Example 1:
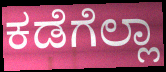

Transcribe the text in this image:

ಕಡೆಗೆಲ್ಲಾ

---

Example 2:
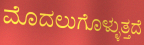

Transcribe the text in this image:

ಮೊದಲುಗೊಳ್ಳುತ್ತದೆ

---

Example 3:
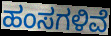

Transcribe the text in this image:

ಹಂಸಗಳಿವೆ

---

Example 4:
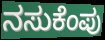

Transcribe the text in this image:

ನಸುಕೆಂಪು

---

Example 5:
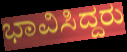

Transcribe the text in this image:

ಭಾವಿಸಿದ್ದರು